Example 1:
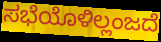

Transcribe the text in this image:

ಸಭೆಯೊಳಿಲ್ಲಂಜದೆ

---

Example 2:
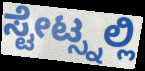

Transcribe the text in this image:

ಸ್ಟೇಟ್ಸ್ನಲ್ಲಿ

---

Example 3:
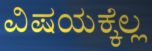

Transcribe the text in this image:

ವಿಷಯಕ್ಕೆಲ್ಲ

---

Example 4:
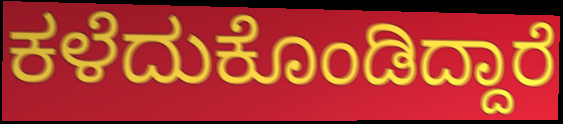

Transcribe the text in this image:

ಕಳೆದುಕೊಂಡಿದ್ದಾರೆ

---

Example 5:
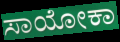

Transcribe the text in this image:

ಸಾಯೋಕಾ